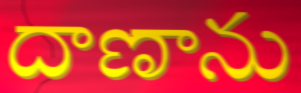
దాణాను